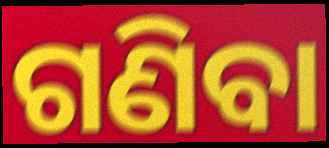
ଗଣିବା